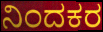
ನಿಂದಕರ